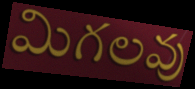
మిగలవు